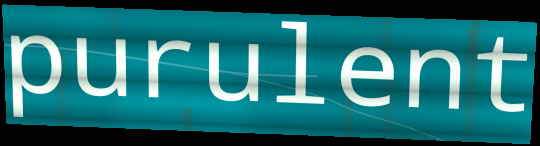
purulent